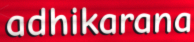
adhikarana